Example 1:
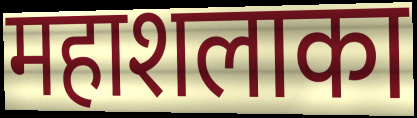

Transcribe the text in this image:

महाशलाका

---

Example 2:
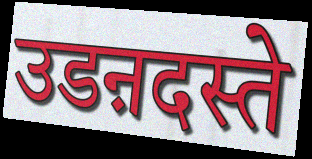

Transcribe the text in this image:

उडऩदस्ते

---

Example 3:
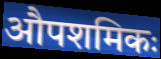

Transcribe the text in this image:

औपशमिकः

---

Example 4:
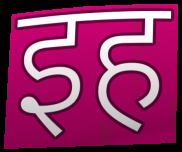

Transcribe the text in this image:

इह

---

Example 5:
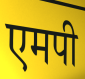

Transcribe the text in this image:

एमपी